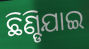
ଛିଣ୍ଡିଯାଇ